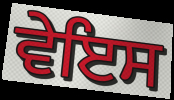
ਵੇਇਸ